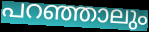
പറഞ്ഞാലും